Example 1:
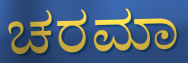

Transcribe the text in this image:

ಚರಮಾ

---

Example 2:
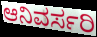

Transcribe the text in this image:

ಆನಿವರ್ಸರಿ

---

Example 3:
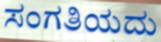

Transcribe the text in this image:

ಸಂಗತಿಯದು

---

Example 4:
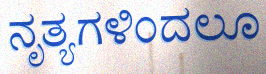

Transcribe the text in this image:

ನೃತ್ಯಗಳಿಂದಲೂ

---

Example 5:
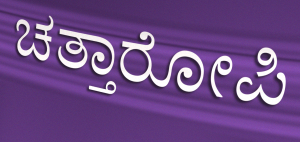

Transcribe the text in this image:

ಚತ್ತಾರೋಪಿ